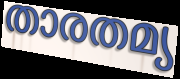
താരതമ്യ